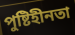
পুষ্টিহীনতা